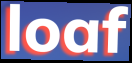
loaf